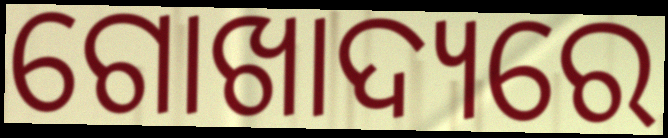
ଗୋଖାଦ୍ୟରେ